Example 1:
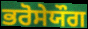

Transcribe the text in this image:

ਭਰੋਸੇਯੌਗ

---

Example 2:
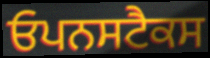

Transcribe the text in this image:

ਓਪਨਸਟੈਕਸ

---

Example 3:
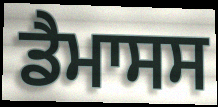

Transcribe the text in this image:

ਡੈਮਾਸਸ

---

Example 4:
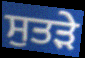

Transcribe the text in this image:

ਸੁਤੜੇ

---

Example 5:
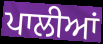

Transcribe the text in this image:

ਪਾਲੀਆਂ